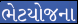
ભેટયોજના